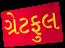
ગ્રેટફુલ